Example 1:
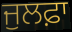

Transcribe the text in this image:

ਜੁਲਫ਼ਾ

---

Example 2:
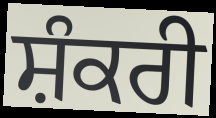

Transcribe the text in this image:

ਸ਼ੰਕਰੀ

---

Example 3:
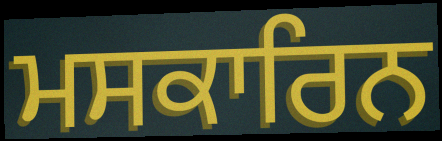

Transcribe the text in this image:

ਮਸਕਾਰਿਨ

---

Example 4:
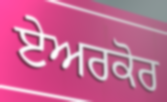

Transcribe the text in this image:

ਏਅਰਕੋਰ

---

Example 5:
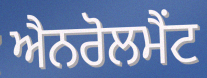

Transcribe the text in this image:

ਐਨਰੋਲਮੈਂਟ